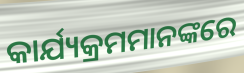
କାର୍ଯ୍ୟକ୍ରମମାନଙ୍କରେ